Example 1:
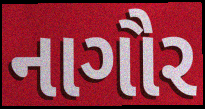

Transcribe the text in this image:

નાગૌર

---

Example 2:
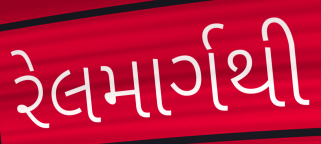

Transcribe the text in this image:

રેલમાર્ગથી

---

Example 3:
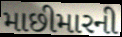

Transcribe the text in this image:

માછીમારની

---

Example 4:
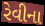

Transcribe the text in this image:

રેવીના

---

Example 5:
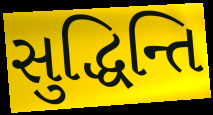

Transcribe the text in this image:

સુદ્ધિન્તિ